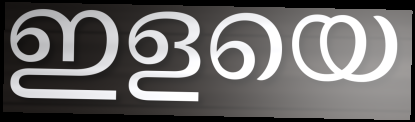
ഇളയെ